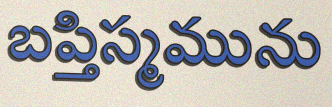
బప్తిస్మమును